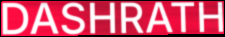
DASHRATH